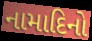
નામાદિનો